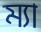
ম্যা